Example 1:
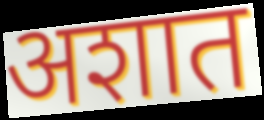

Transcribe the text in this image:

अशात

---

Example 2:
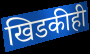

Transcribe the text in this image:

खिडकीही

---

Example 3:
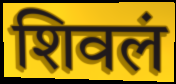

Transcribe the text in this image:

शिवलं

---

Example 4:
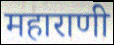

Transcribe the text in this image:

महाराणी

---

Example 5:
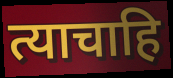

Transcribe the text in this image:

त्याचाहि